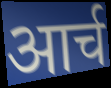
आर्च